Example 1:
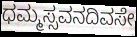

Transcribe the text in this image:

ಧಮ್ಮಸ್ಸವನದಿವಸೇ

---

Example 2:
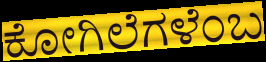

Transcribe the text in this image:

ಕೋಗಿಲೆಗಳೆಂಬ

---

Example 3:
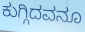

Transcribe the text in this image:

ಕುಗ್ಗಿದವನೂ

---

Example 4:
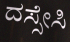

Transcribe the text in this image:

ದಸ್ಸೇಸಿ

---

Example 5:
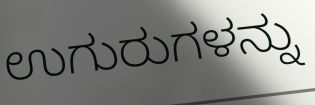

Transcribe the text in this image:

ಉಗುರುಗಳನ್ನು